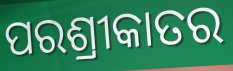
ପରଶ୍ରୀକାତର